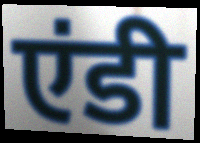
एंडी